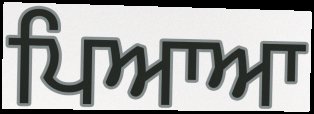
ਪਿਆਆ